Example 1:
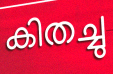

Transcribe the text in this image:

കിതച്ചു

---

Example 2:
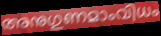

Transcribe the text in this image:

അനുഗുണമാംവിധം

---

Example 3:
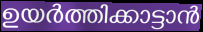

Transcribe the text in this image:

ഉയർത്തിക്കാട്ടാൻ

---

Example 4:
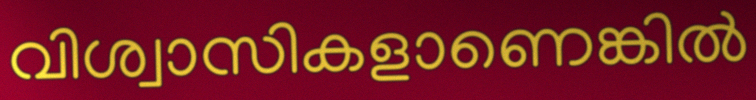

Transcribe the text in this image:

വിശ്വാസികളാണെങ്കിൽ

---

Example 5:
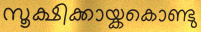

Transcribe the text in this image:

സൂക്ഷിക്കായ്കകൊണ്ടു